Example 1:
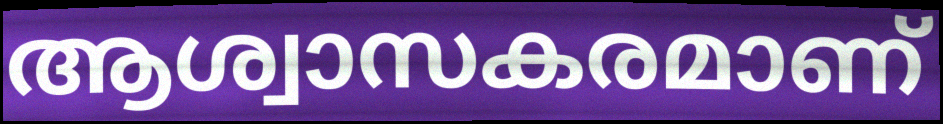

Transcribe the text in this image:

ആശ്വാസകരമാണ്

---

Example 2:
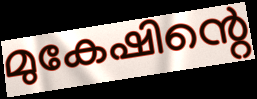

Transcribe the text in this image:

മുകേഷിന്റെ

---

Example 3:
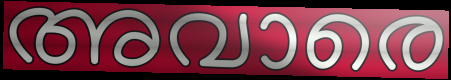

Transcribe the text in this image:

അവാരെ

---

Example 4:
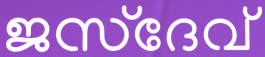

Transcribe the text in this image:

ജസ്ദേവ്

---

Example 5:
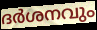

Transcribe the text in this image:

ദർശനവും